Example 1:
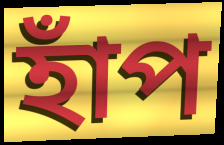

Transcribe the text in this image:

হাঁপ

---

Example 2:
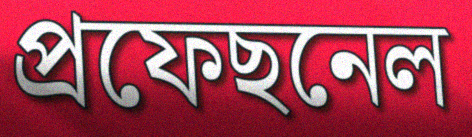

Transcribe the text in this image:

প্ৰফেছনেল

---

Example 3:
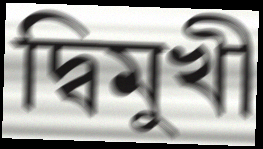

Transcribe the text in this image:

দ্বিমুখী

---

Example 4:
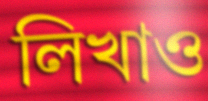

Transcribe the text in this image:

লিখাও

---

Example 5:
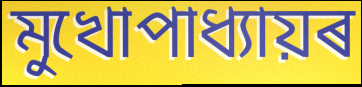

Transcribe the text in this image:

মুখোপাধ্যায়ৰ